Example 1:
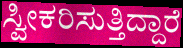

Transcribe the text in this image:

ಸ್ವೀಕರಿಸುತ್ತಿದ್ದಾರೆ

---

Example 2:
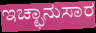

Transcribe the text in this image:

ಇಚ್ಛಾನುಸಾರ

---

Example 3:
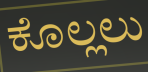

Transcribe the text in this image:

ಕೊಲ್ಲಲು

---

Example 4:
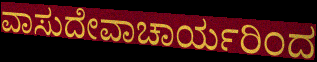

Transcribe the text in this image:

ವಾಸುದೇವಾಚಾರ್ಯರಿಂದ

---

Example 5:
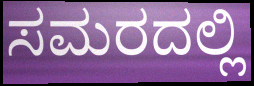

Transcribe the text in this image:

ಸಮರದಲ್ಲಿ